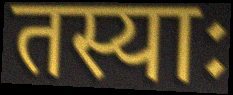
तस्याः